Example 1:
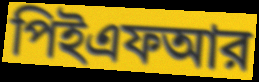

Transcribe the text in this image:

পিইএফআর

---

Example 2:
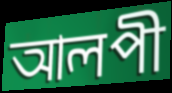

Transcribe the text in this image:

আলপী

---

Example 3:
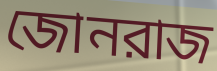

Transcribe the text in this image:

জোনরাজ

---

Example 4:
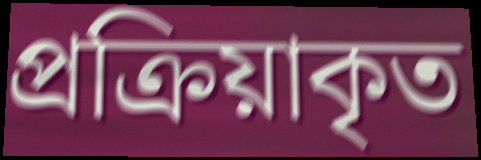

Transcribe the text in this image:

প্রক্রিয়াকৃত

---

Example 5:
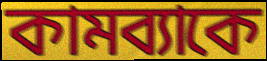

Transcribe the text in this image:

কামব্যাকে